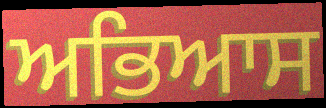
ਅਭਿਆਸ